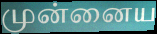
முன்னைய